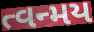
ત્વન્મય